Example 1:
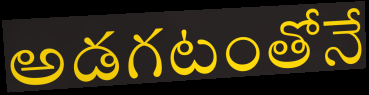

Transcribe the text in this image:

అడగటంతోనే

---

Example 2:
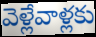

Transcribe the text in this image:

వెళ్లేవాళ్లకు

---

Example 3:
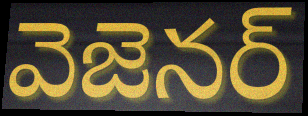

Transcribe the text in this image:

వెజెనర్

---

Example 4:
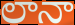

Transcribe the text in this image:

లానా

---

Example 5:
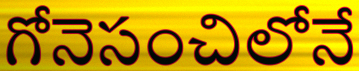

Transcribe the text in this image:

గోనెసంచిలోనే